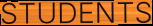
STUDENTS